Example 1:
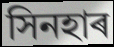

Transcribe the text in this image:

সিনহাৰ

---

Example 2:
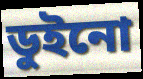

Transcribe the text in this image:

ডুইনো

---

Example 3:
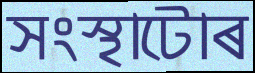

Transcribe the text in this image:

সংস্থাটোৰ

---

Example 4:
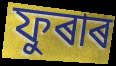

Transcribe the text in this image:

ফুৰাৰ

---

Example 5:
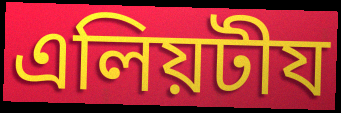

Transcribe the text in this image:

এলিয়টীয